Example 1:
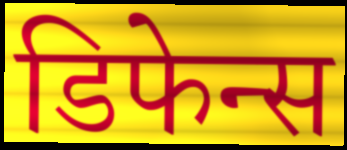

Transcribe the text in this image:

डिफेन्स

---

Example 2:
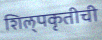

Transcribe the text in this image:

शिल्पकृतीची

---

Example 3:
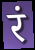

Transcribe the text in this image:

रं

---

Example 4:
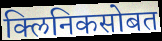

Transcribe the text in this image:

क्लिनिकसोबत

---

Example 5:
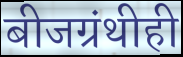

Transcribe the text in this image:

बीजग्रंथीही